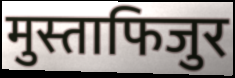
मुस्ताफिजुर